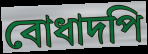
বোধাদপি